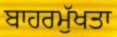
ਬਾਹਰਮੁੱਖਤਾ